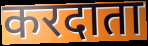
करदाता